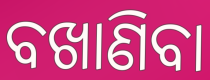
ବଖାଣିବା